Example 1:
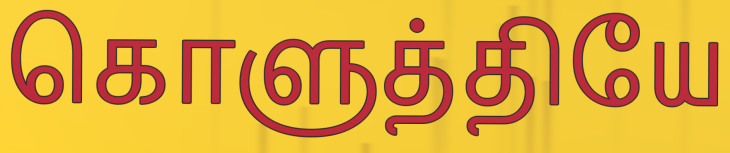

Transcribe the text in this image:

கொளுத்தியே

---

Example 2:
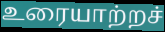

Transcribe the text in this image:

உரையாற்றச்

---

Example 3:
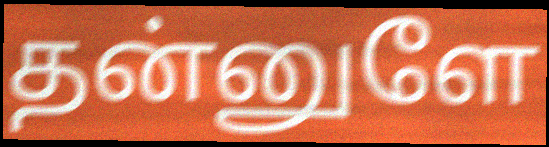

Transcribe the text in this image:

தன்னுளே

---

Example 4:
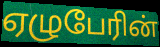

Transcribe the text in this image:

ஏழுபேரின்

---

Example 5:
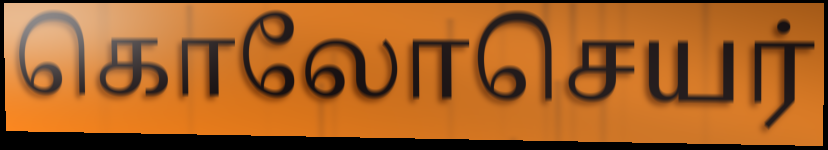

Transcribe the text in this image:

கொலோசெயர்